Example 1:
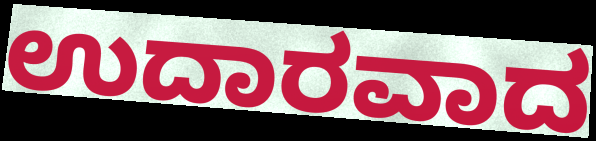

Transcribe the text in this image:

ಉದಾರವಾದ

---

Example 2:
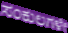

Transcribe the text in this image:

ಸಂಕುಲಗಳೇ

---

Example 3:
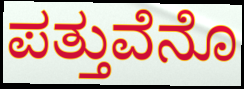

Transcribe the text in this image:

ಪತ್ತುವೆನೊ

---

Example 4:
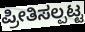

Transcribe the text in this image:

ಪ್ರೀತಿಸಲ್ಪಟ್ಟ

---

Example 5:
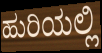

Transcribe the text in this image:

ಹುರಿಯಲ್ಲಿ